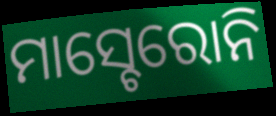
ମାସ୍ଚେରୋନି